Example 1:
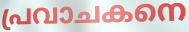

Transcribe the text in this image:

പ്രവാചകനെ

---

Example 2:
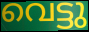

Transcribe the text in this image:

വെട്ടു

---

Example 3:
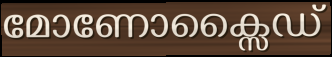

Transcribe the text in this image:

മോണോക്സൈഡ്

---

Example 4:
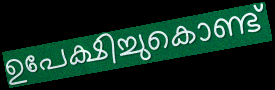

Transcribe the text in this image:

ഉപേക്ഷിച്ചുകൊണ്ട്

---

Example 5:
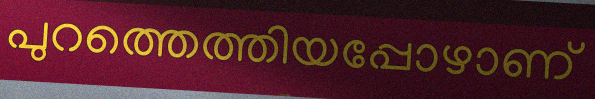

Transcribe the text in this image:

പുറത്തെത്തിയപ്പോഴാണ്